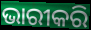
ଭାରୀକରି